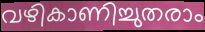
വഴികാണിച്ചുതരാം